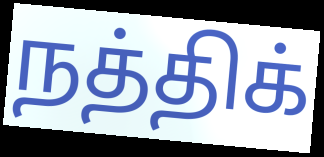
நத்திக்